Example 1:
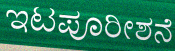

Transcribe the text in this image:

ಇಟಪೂರೀಶನೆ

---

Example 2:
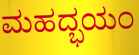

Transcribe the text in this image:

ಮಹದ್ಭಯಂ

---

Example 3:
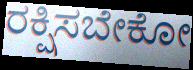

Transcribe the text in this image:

ರಕ್ಷಿಸಬೇಕೋ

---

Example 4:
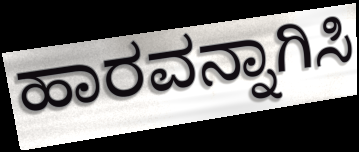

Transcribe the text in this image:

ಹಾರವನ್ನಾಗಿಸಿ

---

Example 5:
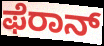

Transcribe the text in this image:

ಫೆರಾನ್